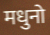
मधुनो